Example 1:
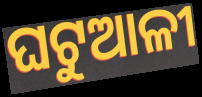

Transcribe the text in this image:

ଘଟୁଆଳୀ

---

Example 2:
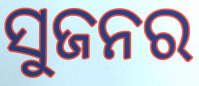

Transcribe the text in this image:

ସୁଜନର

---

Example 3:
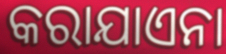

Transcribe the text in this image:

କରାଯାଏନା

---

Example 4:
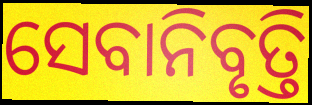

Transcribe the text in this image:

ସେବାନିବୃତ୍ତି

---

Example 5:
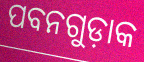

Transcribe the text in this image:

ପବନଗୁଡ଼ାକ